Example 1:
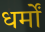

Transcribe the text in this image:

धर्मों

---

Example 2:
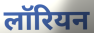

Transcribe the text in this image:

लॉरियन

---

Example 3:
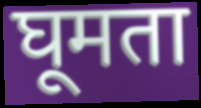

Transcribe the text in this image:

घूमता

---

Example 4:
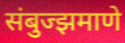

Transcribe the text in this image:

संबुज्झमाणे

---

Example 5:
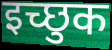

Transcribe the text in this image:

इच्छुक